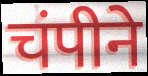
चंपीने